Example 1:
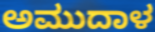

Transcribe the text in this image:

ಅಮುದಾಳ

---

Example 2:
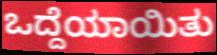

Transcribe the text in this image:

ಒದ್ದೆಯಾಯಿತು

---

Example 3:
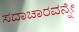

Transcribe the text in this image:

ಸದಾಚಾರವನ್ನೇ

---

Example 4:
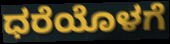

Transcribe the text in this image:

ಧರೆಯೊಳಗೆ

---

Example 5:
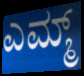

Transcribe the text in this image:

ಎಮ್ಮ್